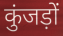
कुंजड़ों